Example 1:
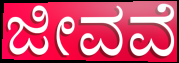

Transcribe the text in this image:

ಜೀವವೆ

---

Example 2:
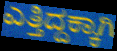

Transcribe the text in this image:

ಎತ್ತಿದ್ದಕ್ಕಾಗಿ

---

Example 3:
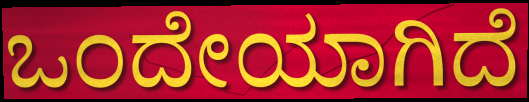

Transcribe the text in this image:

ಒಂದೇಯಾಗಿದೆ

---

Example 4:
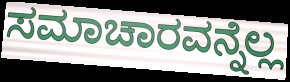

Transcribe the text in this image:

ಸಮಾಚಾರವನ್ನೆಲ್ಲ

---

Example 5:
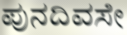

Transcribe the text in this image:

ಪುನದಿವಸೇ